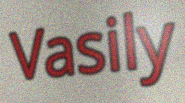
Vasily